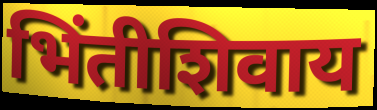
भिंतीशिवाय